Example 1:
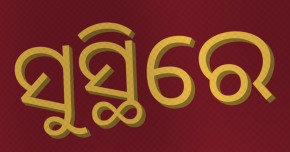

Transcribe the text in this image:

ସୁସ୍ଥିରେ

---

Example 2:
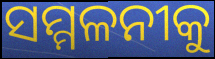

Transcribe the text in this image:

ସମ୍ମଳନୀକୁ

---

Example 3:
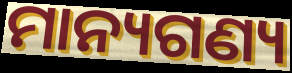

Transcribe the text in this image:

ମାନ୍ୟଗଣ୍ୟ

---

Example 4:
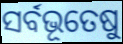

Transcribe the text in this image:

ସର୍ବଭୂତେଷୁ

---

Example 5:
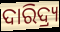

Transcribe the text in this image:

ଦାରିଦ୍ର୍ୟ